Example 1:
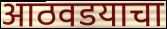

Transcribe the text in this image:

आठवडयाचा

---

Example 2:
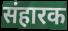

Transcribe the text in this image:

संहारक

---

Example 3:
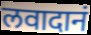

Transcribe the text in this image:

लवादानं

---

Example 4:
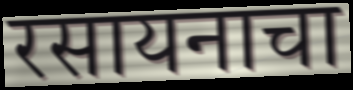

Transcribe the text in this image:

रसायनाचा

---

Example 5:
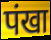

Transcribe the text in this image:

पंखा